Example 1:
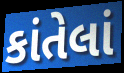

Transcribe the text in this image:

કાંતેલાં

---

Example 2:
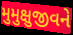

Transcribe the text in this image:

મુમુક્ષુજીવને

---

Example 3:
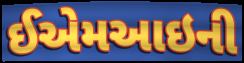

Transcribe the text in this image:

ઈએમઆઇની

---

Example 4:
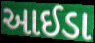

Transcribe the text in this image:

આઈડા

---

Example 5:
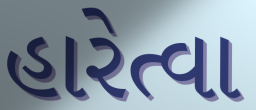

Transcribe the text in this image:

હારેત્વા